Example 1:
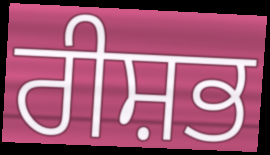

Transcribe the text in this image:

ਰੀਸ਼ਭ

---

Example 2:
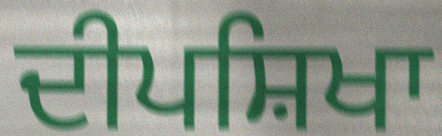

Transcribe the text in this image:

ਦੀਪਸ਼ਿਖਾ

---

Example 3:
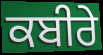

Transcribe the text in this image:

ਕਬੀਰੇ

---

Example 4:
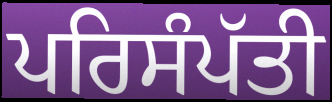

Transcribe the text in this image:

ਪਰਿਸੰਪੱਤੀ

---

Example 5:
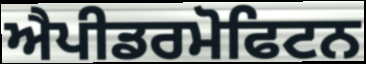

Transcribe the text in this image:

ਐਪੀਡਰਮੋਫਿਟਨ